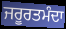
ਜਰੂਰਤਮੰਦਾ